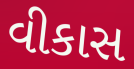
વીકાસ